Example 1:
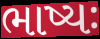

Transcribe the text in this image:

ભાષ્યઃ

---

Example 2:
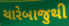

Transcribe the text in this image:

ચારેબાજુથી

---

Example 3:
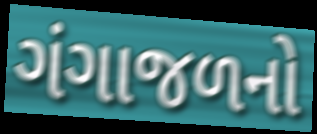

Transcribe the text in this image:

ગંગાજળનો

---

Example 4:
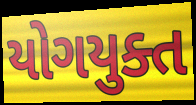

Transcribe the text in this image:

યોગયુક્ત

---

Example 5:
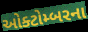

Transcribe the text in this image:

ઓક્ટોમ્બરના